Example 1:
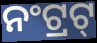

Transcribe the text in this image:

ନଂଟ୍ରଟ୍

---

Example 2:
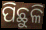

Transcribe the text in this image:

ପିଛୁଳି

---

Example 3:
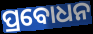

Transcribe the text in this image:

ପ୍ରବୋଧନ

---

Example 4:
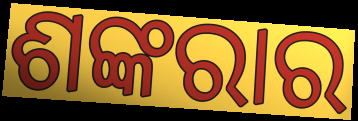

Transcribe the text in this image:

ଶଙ୍କରାର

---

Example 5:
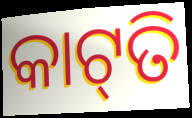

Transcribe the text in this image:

କାଟ୍‍ତି